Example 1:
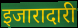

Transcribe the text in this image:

इजारादारी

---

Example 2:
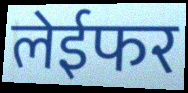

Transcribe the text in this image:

लेईफर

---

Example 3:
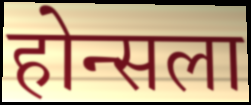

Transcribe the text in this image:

होन्सला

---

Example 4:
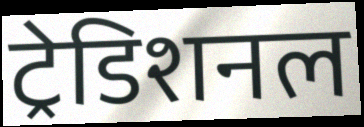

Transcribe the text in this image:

ट्रेडिशनल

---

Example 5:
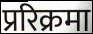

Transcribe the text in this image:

प्ररिक्रमा